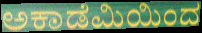
ಅಕಾಡೆಮಿಯಿಂದ